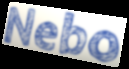
Nebo